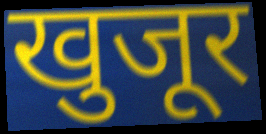
खुजूर